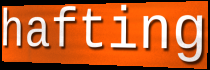
hafting